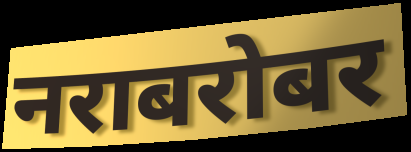
नराबरोबर